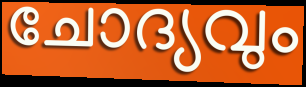
ചോദ്യവും